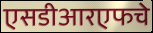
एसडीआरएफचे